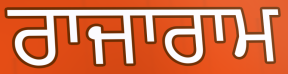
ਰਾਜਾਰਾਮ